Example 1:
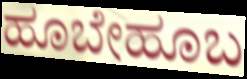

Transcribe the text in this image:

ಹೂಬೇಹೂಬ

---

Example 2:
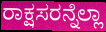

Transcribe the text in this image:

ರಾಕ್ಷಸರನ್ನೆಲ್ಲಾ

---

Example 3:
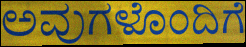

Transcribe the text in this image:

ಅವುಗಳೊಂದಿಗೆ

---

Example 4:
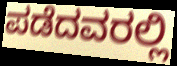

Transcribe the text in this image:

ಪಡೆದವರಲ್ಲಿ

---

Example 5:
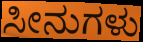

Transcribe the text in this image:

ಸೀನುಗಳು